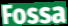
Fossa